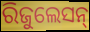
ରିଜୁଲେସନ୍